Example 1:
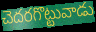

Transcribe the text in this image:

చెదరగొట్టువాడు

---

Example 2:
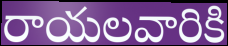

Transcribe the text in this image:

రాయలవారికి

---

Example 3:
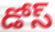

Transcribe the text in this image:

డోస్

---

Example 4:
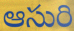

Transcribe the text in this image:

ఆసురి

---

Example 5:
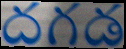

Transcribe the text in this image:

దగడ